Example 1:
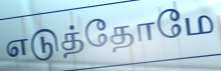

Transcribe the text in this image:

எடுத்தோமே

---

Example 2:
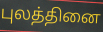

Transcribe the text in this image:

புலத்தினை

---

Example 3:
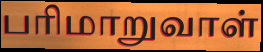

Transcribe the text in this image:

பரிமாறுவாள்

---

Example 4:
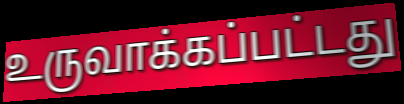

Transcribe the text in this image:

உருவாக்கப்பட்டது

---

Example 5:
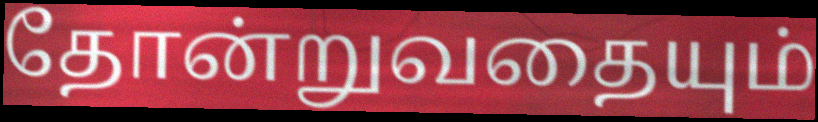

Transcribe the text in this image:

தோன்றுவதையும்